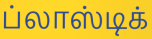
ப்லாஸ்டிக்